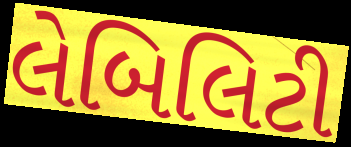
લેબિલિટી